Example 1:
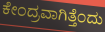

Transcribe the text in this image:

ಕೇಂದ್ರವಾಗಿತ್ತೆಂದು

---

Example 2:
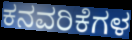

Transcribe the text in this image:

ಕನವರಿಕೆಗಳ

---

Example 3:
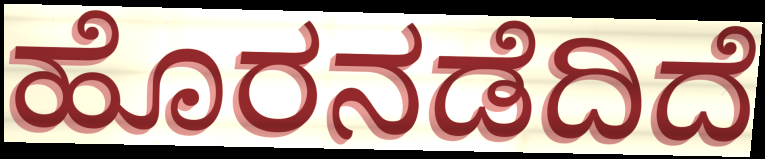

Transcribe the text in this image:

ಹೊರನಡೆದಿದೆ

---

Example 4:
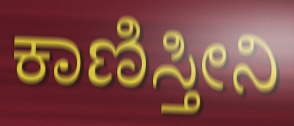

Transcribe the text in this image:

ಕಾಣಿಸ್ತೀನಿ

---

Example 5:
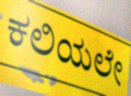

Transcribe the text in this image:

ಕಲಿಯಲೇ